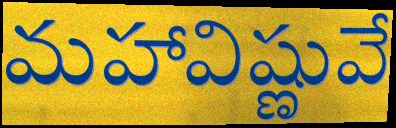
మహావిష్ణువే